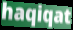
haqiqat